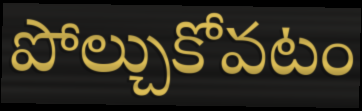
పోల్చుకోవటం